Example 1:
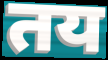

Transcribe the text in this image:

तय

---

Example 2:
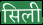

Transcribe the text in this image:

सिली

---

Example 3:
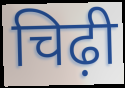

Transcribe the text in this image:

चिढ़ी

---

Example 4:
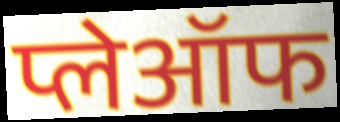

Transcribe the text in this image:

प्लेऑफ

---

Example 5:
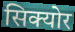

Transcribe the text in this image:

सिक्योर